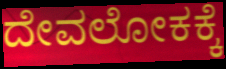
ದೇವಲೋಕಕ್ಕೆ